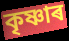
কৃষ্ণাৰ